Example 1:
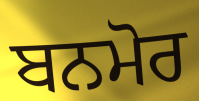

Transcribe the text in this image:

ਬਨਮੋਰ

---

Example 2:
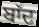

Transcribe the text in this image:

ਬਾੱਦ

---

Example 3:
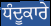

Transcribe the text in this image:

ਧੰਦੂਕਾਰੇ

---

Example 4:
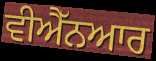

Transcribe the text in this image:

ਵੀਐੱਨਆਰ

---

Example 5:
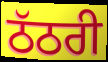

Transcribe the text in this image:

ਠੱਠਰੀ